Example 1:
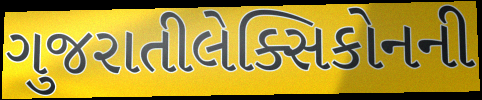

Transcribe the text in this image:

ગુજરાતીલેક્સિકોનની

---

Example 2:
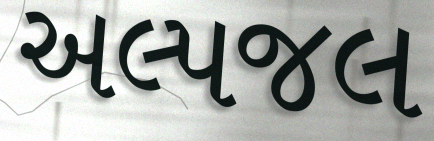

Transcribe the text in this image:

અલ્પજલ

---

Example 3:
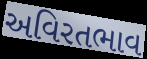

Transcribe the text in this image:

અવિરતભાવ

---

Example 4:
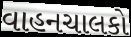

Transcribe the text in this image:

વાહનચાલકો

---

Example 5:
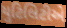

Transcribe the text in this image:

યુટિલિટીએ